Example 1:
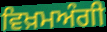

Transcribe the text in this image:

ਵਿਖ਼ਮਅੰਗੀ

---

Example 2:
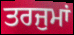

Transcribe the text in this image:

ਤਰਜੁਮਾਂ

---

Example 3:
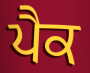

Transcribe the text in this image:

ਪੈਕ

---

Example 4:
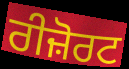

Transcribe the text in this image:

ਰੀਜ਼ੋਰਟ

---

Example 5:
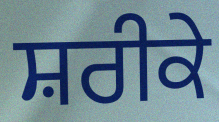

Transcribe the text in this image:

ਸ਼ਰੀਕੇ